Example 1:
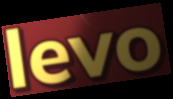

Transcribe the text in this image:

levo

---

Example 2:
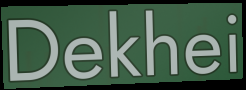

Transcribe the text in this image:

Dekhei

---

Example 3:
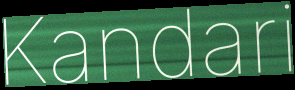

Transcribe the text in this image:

Kandari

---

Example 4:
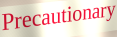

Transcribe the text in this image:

Precautionary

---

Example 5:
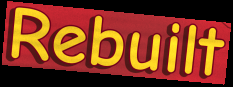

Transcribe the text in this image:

Rebuilt